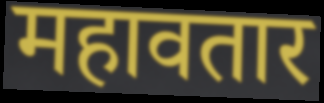
महावतार